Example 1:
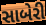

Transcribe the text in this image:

સાબેરી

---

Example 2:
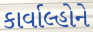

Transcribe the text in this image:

કાર્વાલ્હોને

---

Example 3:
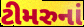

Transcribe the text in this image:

ટીમરુનાં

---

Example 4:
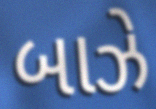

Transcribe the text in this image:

બાઝે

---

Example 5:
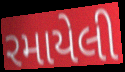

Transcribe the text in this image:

રમાયેલી